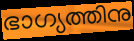
ഭാഗ്യത്തിനു